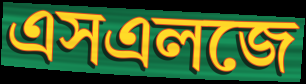
এসএলজে